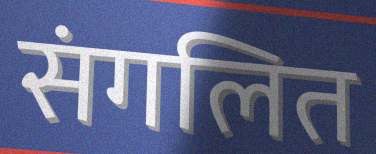
संगलित